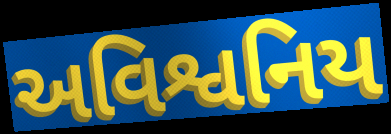
અવિશ્વનિય